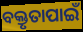
ବକ୍ତୃତାପାଇଁ